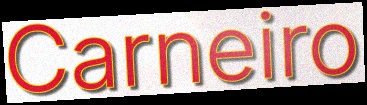
Carneiro